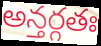
అన్తర్గతః